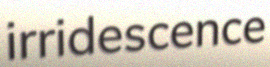
irridescence